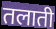
तलाती